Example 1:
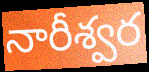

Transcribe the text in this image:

నారీశ్వర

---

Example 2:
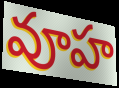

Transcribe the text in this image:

వూహ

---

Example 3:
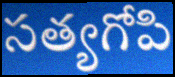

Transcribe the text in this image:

సత్యగోపి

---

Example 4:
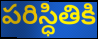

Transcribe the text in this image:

పరిస్ధితికి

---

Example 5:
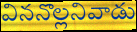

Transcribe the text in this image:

విననొల్లనివాడు